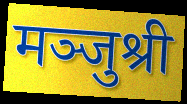
मञ्जुश्री